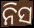
ନିସ